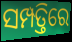
ସମ୍ପତ୍ତିରେ